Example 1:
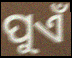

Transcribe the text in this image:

ପୁଏଁ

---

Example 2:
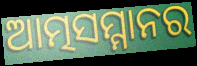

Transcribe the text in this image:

ଆତ୍ମସମ୍ମାନର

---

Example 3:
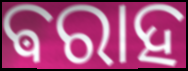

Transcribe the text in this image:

ଵରାହ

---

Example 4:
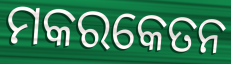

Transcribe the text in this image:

ମକରକେତନ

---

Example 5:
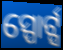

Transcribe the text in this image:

ସ୍ପୋର୍ଟ୍ସ